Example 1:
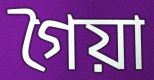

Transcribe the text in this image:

গৈয়া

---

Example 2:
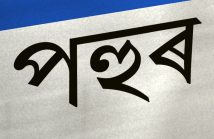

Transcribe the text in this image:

পহুৰ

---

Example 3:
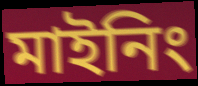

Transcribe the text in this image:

মাইনিং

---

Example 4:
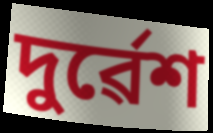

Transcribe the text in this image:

দুৰ্ৱেশ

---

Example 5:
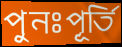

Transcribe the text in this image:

পুনঃপূৰ্তি